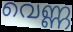
വെണ്ണ